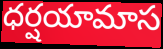
ధర్షయామాస